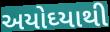
અયોઘ્યાથી